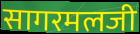
सागरमलजी